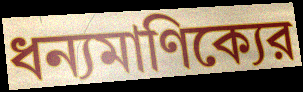
ধন্যমাণিক্যের